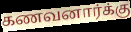
கணவனார்க்கு